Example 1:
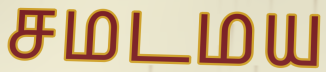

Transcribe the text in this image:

சமடமய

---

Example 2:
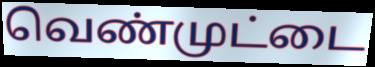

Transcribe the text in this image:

வெண்முட்டை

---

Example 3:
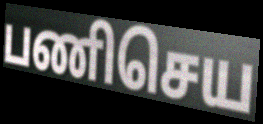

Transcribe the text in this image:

பணிசெய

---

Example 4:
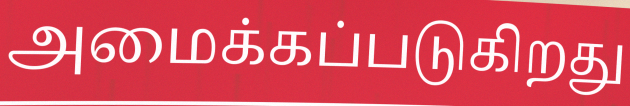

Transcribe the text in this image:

அமைக்கப்படுகிறது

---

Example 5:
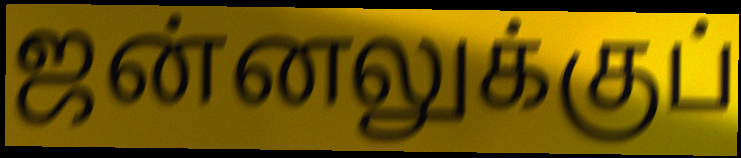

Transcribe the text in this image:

ஜன்னலுக்குப்